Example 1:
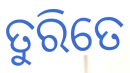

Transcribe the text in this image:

ତୁରିତେ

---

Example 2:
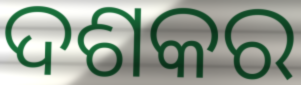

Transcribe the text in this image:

ଦଶକର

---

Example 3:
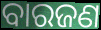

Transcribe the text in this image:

ବାରଜଣ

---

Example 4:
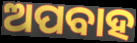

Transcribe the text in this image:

ଅପବାହ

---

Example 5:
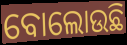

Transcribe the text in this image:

ବୋଲୋଉଛି